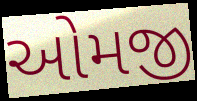
ઓમજી